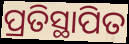
ପ୍ରତିସ୍ଥାପିତ